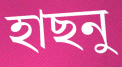
হাছনু